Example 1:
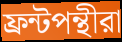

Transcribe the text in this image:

ফ্রন্টপন্থীরা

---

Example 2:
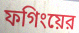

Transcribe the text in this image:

ফগিংয়ের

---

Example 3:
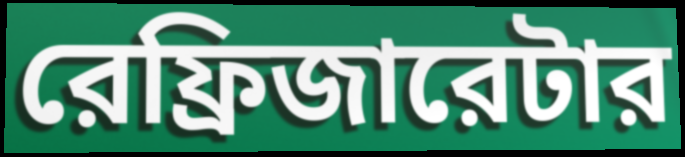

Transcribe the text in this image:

রেফ্রিজারেটার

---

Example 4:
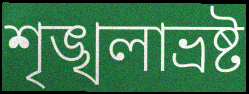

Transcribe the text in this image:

শৃঙ্খলাভ্রষ্ট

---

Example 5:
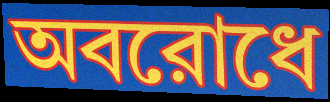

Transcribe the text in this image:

অবরোধে